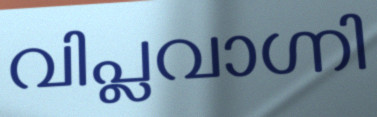
വിപ്ലവാഗ്നി